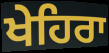
ਖੇਹਿਰਾ